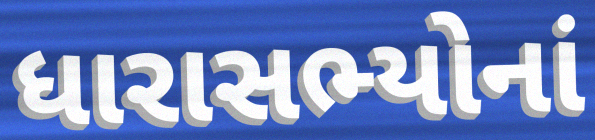
ધારાસભ્યોનાં